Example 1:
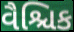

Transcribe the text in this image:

વૈશ્ચિક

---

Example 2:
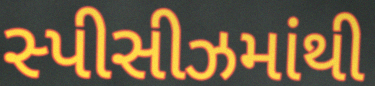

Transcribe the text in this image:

સ્પીસીઝમાંથી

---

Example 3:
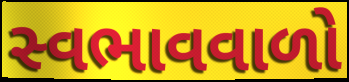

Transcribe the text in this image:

સ્વભાવવાળો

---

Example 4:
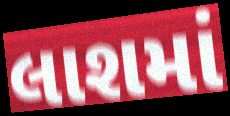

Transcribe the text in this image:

લાશમાં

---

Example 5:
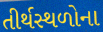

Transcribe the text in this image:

તીર્થસ્થળોના